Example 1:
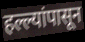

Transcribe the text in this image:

हल्ल्यांपासून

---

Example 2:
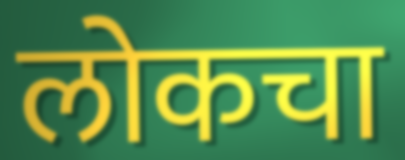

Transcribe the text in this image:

लोकचा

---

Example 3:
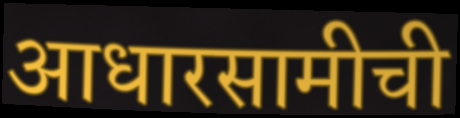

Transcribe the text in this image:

आधारसामीची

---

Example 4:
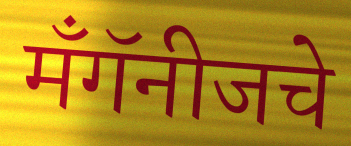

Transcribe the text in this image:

मँगॅनीजचे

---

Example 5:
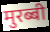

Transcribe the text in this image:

मुरब्बी